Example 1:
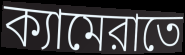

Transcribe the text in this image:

ক্যামেরাতে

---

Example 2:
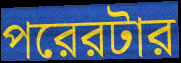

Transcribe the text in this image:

পরেরটার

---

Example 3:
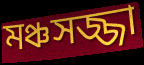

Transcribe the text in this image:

মঞ্চসজ্জা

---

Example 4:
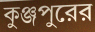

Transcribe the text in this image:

কুঞ্জপুরের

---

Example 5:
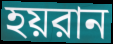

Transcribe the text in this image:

হয়রান